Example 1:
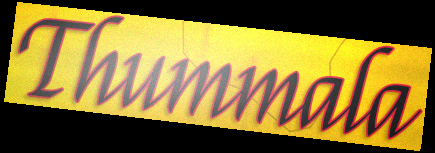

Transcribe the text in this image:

Thummala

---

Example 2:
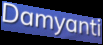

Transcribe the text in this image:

Damyanti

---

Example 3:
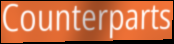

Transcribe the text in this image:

Counterparts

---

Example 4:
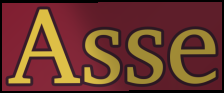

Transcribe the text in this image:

Asse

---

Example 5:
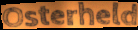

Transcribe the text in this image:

Osterheld